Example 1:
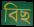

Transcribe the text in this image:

বিছ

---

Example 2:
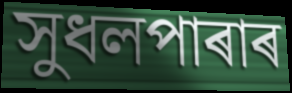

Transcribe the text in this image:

সুধলপাৰাৰ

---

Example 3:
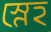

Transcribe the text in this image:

স্নেহ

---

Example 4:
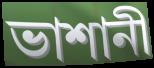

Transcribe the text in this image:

ভাশানী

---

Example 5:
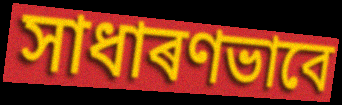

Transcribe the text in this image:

সাধাৰণভাবে